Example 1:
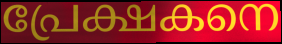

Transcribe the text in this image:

പ്രേക്ഷകനെ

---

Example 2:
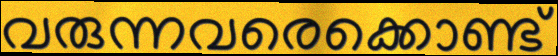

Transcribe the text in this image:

വരുന്നവരെക്കൊണ്ട്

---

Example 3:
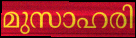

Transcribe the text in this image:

മുസാഹരി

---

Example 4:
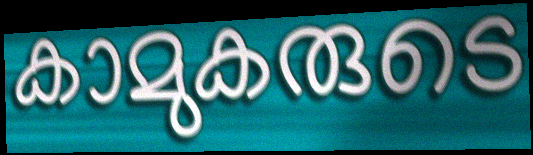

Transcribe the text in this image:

കാമുകരുടെ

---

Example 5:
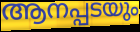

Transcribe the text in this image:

ആനപ്പടയും